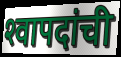
श्वापदांची